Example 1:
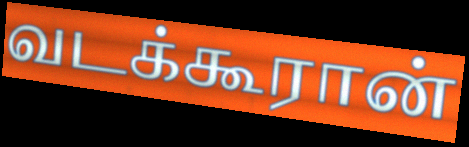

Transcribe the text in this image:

வடக்கூரான்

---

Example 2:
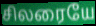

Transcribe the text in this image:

சிலரையே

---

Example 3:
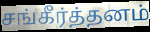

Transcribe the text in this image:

சங்கீர்த்தனம்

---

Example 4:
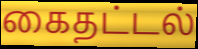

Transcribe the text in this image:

கைதட்டல்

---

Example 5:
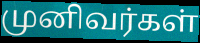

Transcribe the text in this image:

முனிவர்கள்